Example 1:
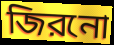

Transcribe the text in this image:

জিরনো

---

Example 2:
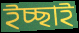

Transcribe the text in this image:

ইচ্ছাই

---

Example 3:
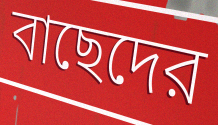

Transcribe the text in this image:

বাছেদের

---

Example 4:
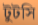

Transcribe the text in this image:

টুটসি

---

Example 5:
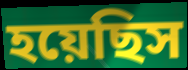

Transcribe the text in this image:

হয়েছিস